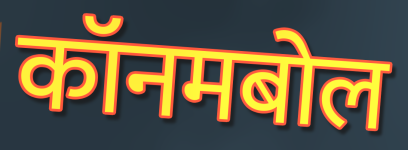
कॉनमबोल